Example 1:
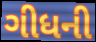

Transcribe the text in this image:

ગીધની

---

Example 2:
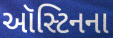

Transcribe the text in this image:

ઑસ્ટિનના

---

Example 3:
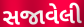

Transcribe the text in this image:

સજાવેલી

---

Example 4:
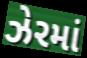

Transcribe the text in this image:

ઝેરમાં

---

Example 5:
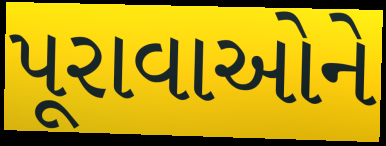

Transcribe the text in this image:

પૂરાવાઓને